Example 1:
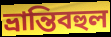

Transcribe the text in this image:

ভ্রান্তিবহুল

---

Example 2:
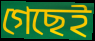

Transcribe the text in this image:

গেছেই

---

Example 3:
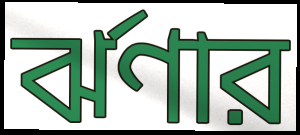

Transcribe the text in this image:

র্ঝণার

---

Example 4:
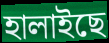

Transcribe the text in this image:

হালাইছে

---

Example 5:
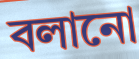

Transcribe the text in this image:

বলানো